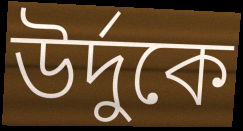
উর্দুকে